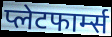
प्लेटफार्म्स